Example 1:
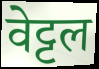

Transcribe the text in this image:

वेट्टल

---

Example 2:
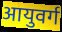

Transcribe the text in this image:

आयुवर्ग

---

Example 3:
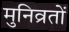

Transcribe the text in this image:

मुनिव्रतों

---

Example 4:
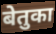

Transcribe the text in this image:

बेतुका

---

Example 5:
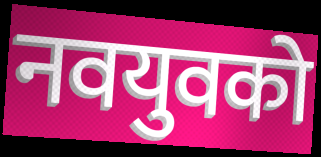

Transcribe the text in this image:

नवयुवको